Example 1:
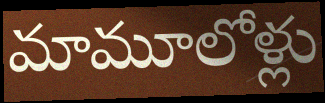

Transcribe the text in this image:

మామూలోళ్లు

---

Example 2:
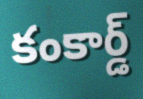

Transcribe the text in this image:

కంకార్డ్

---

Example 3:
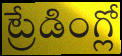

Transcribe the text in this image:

ట్రేడింగ్లో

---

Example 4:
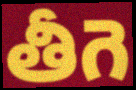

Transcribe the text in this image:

తీగె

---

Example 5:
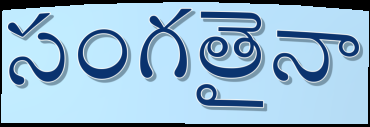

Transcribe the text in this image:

సంగతైనా